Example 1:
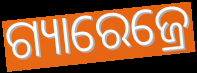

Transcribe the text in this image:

ଗ୍ୟାରେଜ୍ରେ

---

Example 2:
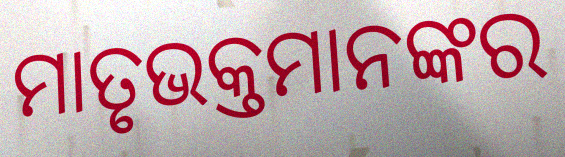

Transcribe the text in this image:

ମାତୃଭକ୍ତମାନଙ୍କର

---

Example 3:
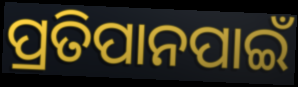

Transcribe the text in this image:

ପ୍ରତିପାନପାଇଁ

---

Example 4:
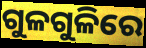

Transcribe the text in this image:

ଗୁଳଗୁଳିରେ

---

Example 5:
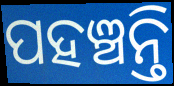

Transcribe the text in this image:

ପହଞ୍ଚନ୍ତି